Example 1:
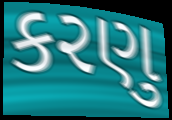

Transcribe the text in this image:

કરણુ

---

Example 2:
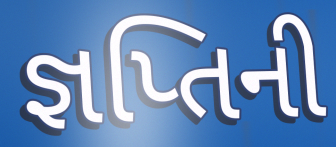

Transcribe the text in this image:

જ્ઞપ્તિની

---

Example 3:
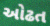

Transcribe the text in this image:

ઓઢત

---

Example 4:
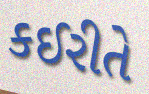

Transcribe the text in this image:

કઈરીતે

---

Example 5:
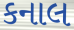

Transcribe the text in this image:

કનાલ